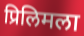
प्रिलिमला